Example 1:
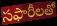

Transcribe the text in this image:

సఫారీలతో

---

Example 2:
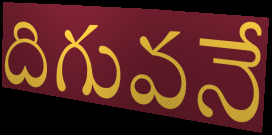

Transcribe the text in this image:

దిగువనే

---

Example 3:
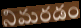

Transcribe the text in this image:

నిమరడం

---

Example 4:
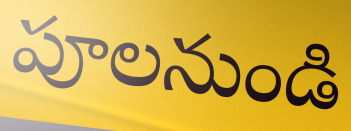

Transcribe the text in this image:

పూలనుండి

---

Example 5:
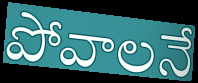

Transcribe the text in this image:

పోవాలనే